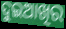
ଦୁଇଆଖିର